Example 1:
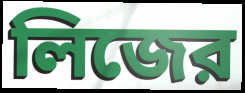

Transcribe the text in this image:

লিজের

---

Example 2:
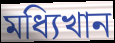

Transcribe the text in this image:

মধ্যিখান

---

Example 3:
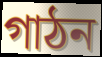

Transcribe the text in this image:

গাঠন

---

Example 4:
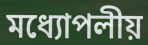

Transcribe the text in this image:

মধ্যোপলীয়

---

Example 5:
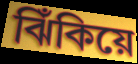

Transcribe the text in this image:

ঝিঁকিয়ে